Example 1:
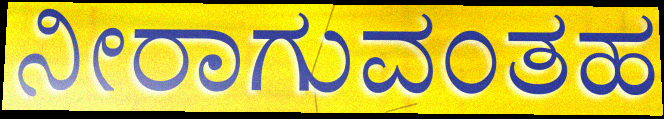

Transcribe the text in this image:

ನೀರಾಗುವಂತಹ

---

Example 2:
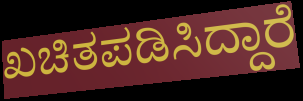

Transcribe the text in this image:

ಖಚಿತಪಡಿಸಿದ್ದಾರೆ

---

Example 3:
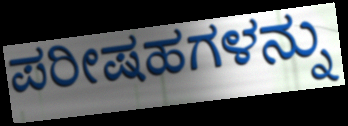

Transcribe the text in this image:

ಪರೀಷಹಗಳನ್ನು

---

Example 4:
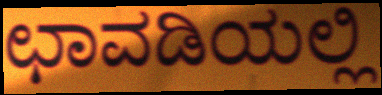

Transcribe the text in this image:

ಛಾವಡಿಯಲ್ಲಿ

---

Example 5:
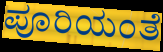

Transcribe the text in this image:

ಪೂರಿಯಂತೆ